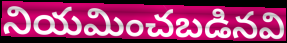
నియమించబడినవి